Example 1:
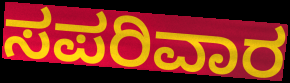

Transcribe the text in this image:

ಸಪರಿವಾರ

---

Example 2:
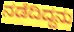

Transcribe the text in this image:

ನಡೆದಿದ್ದನು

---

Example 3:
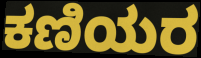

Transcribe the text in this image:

ಕಣಿಯರ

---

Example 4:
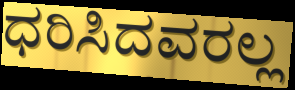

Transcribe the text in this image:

ಧರಿಸಿದವರಲ್ಲ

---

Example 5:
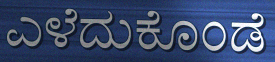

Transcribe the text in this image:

ಎಳೆದುಕೊಂಡೆ